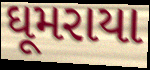
ઘૂમરાયા